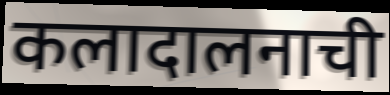
कलादालनाची